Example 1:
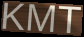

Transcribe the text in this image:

KMT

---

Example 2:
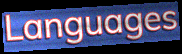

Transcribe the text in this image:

Languages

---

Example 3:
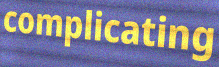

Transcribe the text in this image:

complicating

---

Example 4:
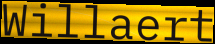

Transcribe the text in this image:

Willaert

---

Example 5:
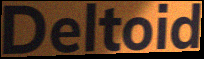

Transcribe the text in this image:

Deltoid